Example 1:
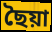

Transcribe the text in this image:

ছৈয়া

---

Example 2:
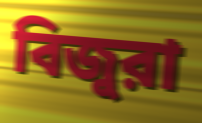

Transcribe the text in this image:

বিজুরা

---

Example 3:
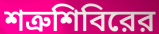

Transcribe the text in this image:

শত্রুশিবিরের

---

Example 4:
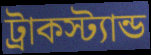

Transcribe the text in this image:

ট্রাকস্ট্যান্ড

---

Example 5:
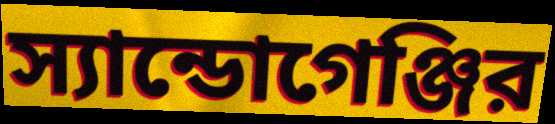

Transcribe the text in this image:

স্যান্ডোগেঞ্জির